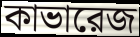
কাভারেজ